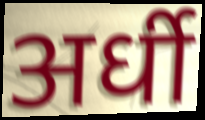
अर्धी